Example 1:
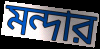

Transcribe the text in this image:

মন্দার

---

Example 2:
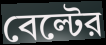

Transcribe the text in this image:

বেল্টের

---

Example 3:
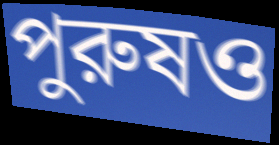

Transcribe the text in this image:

পুরুষও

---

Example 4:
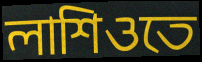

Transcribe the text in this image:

লাশিওতে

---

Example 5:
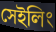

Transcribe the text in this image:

সেইলিং